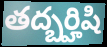
తద్బర్హిషి